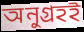
অনুগ্রহই